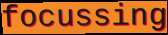
focussing